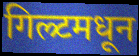
गिल्टमधून